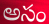
అసం